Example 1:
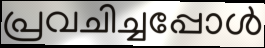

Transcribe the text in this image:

പ്രവചിച്ചപ്പോൾ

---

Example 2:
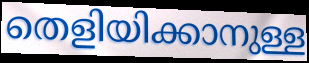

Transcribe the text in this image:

തെളിയിക്കാനുള്ള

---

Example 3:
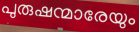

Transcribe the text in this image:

പുരുഷന്മാരേയും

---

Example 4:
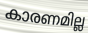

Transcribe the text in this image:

കാരണമില്ല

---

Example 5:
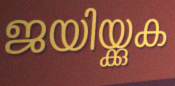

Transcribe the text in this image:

ജയിയ്ക്കുക